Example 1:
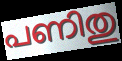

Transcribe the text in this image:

പണിതു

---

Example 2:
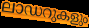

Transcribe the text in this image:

ലാഡറുകളും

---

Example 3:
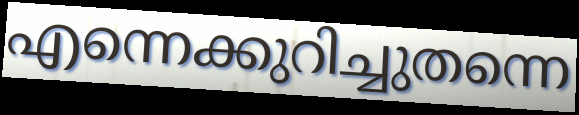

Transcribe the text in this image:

എന്നെക്കുറിച്ചുതന്നെ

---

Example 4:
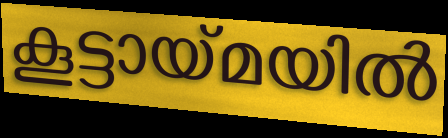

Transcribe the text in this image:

കൂട്ടായ്മയിൽ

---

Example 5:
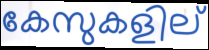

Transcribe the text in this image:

കേസുകളില്